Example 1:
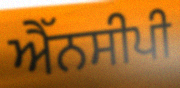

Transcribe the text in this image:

ਐੱਨਸੀਪੀ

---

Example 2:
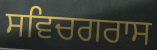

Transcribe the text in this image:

ਸਵਿਚਗਰਾਸ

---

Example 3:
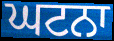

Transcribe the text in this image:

ਘਟਨਾ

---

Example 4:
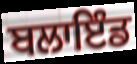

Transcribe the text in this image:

ਬਲਾਇੰਡ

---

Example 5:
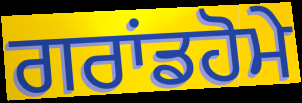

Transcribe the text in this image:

ਗਰਾਂਡਹੋਮੇ